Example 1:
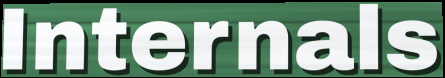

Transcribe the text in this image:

Internals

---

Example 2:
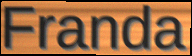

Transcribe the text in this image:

Franda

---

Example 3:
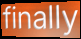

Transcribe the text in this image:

finally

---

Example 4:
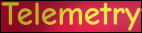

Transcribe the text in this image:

Telemetry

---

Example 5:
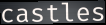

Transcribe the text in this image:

castles